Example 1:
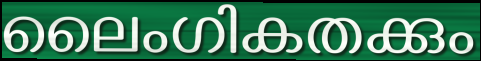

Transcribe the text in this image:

ലൈംഗികതക്കും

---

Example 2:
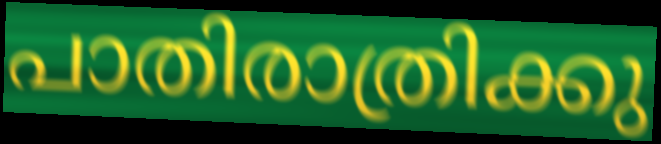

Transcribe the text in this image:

പാതിരാത്രിക്കു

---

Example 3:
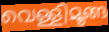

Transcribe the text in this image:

വെള്ളിമൂങ്ങ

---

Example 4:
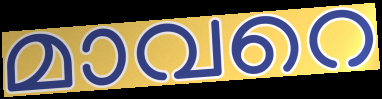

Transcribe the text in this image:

മാവറെ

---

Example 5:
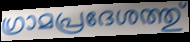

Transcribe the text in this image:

ഗ്രാമപ്രദേശത്തു്